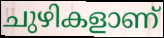
ചുഴികളാണ്